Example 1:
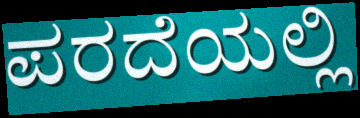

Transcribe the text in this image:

ಪರದೆಯಲ್ಲಿ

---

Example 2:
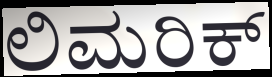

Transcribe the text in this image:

ಲಿಮರಿಕ್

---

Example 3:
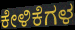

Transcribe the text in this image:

ಕೇಳಿಕೆಗಳ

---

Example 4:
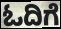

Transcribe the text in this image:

ಓದಿಗೆ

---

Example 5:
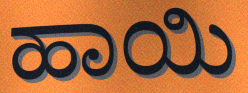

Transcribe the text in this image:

ಹಾಯಿ